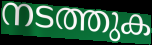
നടത്തുക